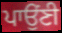
ਪਾਉਂਣੀ